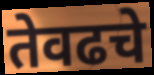
तेवढचे